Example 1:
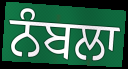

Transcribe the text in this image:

ਨੰਬਲਾ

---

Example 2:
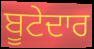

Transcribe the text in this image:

ਬੂਟੇਦਾਰ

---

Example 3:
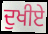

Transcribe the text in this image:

ਦੁਖੀਏ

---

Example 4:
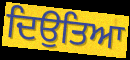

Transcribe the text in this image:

ਦਿਉਤਿਆ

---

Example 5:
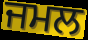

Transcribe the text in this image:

ਜਮਲ